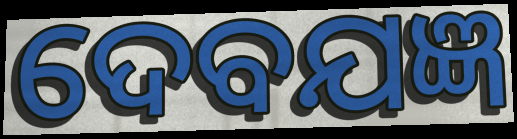
ଦେବଯଜ୍ଞ